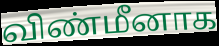
விண்மீனாக